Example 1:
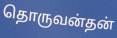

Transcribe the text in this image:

தொருவன்தன்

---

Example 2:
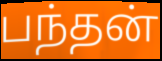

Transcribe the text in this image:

பந்தன்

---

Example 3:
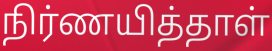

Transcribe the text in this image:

நிர்ணயித்தாள்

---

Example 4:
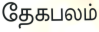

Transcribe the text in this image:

தேகபலம்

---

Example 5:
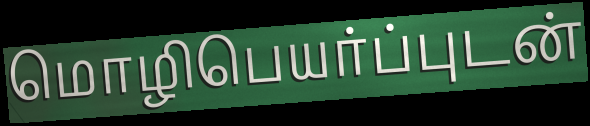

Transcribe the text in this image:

மொழிபெயர்ப்புடன்